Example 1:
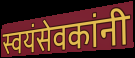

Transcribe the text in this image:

स्वयंसेवकांनी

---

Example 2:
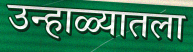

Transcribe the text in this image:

उन्हाळ्यातला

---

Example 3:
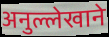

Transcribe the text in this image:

अनुल्लेखाने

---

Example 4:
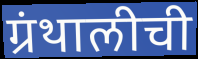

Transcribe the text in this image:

ग्रंथालीची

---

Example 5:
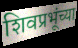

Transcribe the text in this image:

शिवप्रभूंच्या